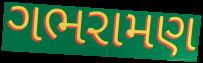
ગભરામણ